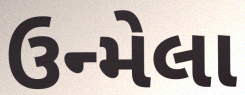
ઉન્મેલા